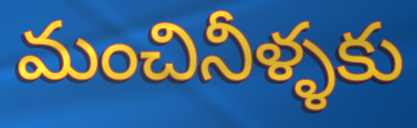
మంచినీళ్ళకు